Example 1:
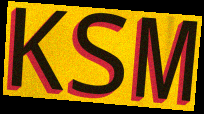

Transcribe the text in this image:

KSM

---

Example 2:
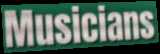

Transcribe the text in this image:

Musicians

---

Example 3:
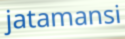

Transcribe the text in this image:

jatamansi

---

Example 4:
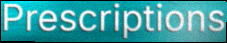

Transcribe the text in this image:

Prescriptions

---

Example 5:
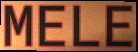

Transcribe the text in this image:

MELE